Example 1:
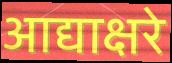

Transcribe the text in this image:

आद्याक्षरे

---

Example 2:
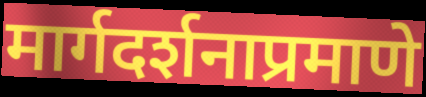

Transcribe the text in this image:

मार्गदर्शनाप्रमाणे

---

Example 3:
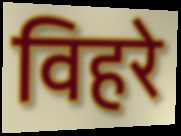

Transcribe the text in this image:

विहरे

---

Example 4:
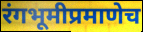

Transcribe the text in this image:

रंगभूमीप्रमाणेच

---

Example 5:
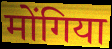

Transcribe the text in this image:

मोंगिया